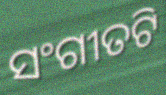
ସଂଗୀତଟି